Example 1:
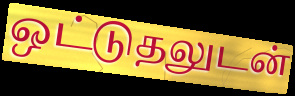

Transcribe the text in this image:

ஒட்டுதலுடன்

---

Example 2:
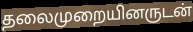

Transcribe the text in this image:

தலைமுறையினருடன்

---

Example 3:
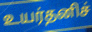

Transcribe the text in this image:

உயர்தனிச்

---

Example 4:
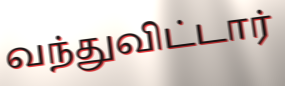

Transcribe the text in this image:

வந்துவிட்டார்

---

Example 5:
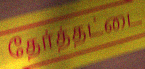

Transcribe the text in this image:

தேர்த்தட்டை